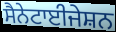
ਸੈਨੇਟਾਈਜੇਸ਼ਨ